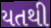
યતથી